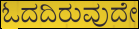
ಓದದಿರುವುದೇ